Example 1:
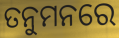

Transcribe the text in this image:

ତନୁମନରେ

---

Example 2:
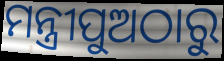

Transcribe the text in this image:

ମନ୍ତ୍ରୀପୁଅଠାରୁ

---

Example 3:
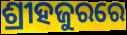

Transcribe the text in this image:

ଶ୍ରୀହଜୁରରେ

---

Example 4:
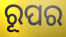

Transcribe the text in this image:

ରୂପର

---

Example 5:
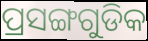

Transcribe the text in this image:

ପ୍ରସଙ୍ଗଗୁଡିକ